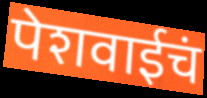
पेशवाईचं